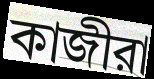
কাজীরা